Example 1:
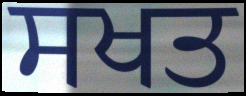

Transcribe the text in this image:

ਸਖਤ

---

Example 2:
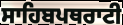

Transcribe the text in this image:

ਸਾਹਿਬਪਥਰਾਟੀ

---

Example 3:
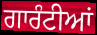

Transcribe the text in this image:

ਗਾਰੰਟੀਆਂ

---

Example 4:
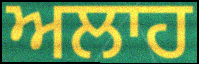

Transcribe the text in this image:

ਅਲਾਹ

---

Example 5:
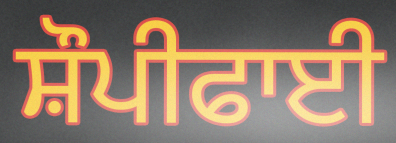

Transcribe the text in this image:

ਸ਼ੌਪੀਫਾਈ